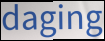
daging